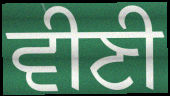
ਵੀਣੀ